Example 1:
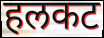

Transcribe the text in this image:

हलकट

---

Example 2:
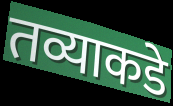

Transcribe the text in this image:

तव्याकडे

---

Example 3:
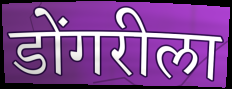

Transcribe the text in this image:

डोंगरीला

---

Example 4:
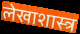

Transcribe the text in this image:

लेखाशास्त्र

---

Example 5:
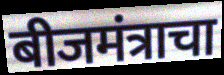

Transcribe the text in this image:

बीजमंत्राचा